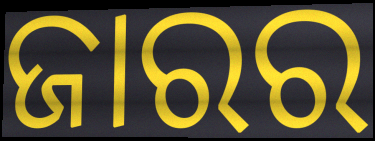
ଜାରର